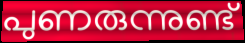
പുണരുന്നുണ്ട്